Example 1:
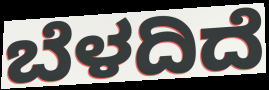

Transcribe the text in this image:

ಬೆಳದಿದೆ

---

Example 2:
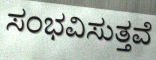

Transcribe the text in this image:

ಸಂಭವಿಸುತ್ತವೆ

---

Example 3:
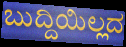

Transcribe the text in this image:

ಬುದ್ದಿಯಿಲ್ಲದ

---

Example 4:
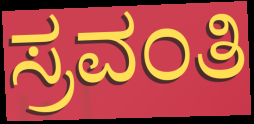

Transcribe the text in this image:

ಸ್ರವಂತಿ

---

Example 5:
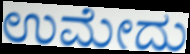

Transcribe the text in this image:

ಉಮೇದು